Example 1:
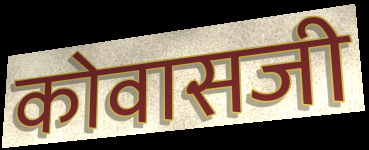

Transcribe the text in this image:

कोवासजी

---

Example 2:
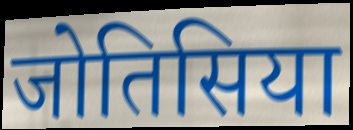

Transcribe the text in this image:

जोतिसिया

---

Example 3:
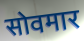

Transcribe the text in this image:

सोवमार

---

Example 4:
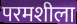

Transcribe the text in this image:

परमशीला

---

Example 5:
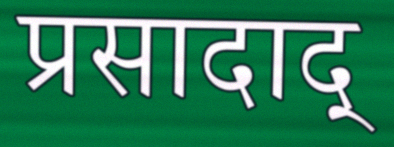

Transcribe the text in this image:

प्रसादाद्